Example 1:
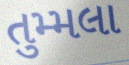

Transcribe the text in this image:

તુમ્મલા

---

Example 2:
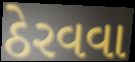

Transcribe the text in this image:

ઠેરવવા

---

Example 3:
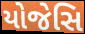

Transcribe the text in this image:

યોજેસિ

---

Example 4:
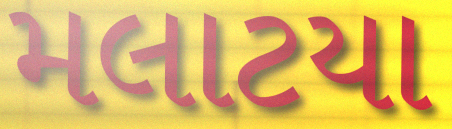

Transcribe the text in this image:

મલાટયા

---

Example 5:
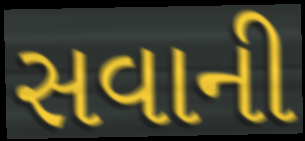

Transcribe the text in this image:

સવાની